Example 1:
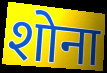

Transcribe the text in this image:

शोना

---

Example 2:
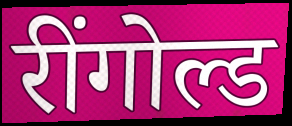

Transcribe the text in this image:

रींगोल्ड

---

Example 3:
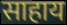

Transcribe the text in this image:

साहाय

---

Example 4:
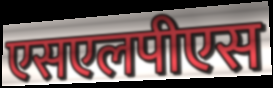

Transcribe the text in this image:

एसएलपीएस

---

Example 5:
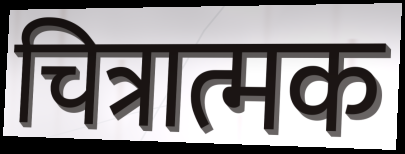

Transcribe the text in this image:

चित्रात्मक